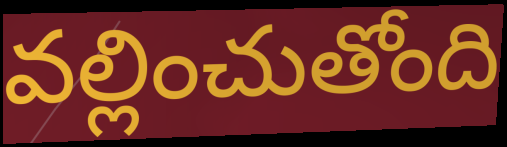
వల్లించుతోంది